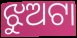
ଝୁଅଟା